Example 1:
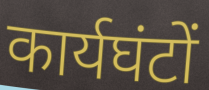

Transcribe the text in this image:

कार्यघंटों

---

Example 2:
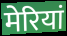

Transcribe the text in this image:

मेरियां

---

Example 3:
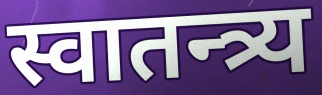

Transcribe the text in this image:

स्वातन्त्र्य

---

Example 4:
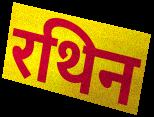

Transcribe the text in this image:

रथिन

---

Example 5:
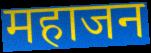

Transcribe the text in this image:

महाजन